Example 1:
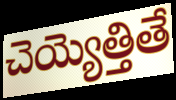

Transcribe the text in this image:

చెయ్యెత్తితే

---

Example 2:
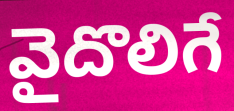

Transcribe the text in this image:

వైదొలిగే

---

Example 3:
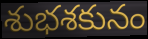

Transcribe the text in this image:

శుభశకునం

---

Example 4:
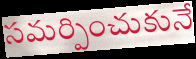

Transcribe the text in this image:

సమర్పించుకునే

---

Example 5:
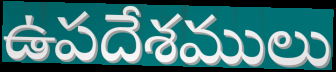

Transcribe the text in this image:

ఉపదేశములు